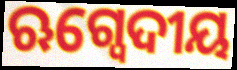
ଋଗ୍ବେଦୀୟ